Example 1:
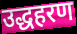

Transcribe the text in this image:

उद्धहरण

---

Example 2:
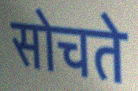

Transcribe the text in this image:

सोचते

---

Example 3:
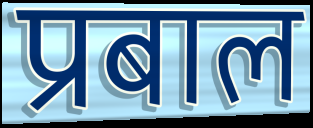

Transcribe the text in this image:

प्रबाल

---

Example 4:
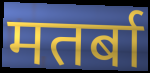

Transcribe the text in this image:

मतर्बा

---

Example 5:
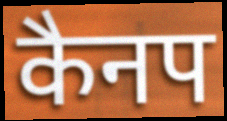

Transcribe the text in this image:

कैनप